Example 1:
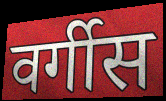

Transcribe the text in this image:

वर्गीस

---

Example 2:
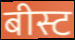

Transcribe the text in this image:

बीस्ट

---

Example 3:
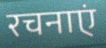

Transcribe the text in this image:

रचनाएं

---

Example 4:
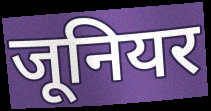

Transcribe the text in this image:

जूनियर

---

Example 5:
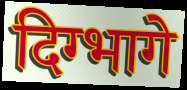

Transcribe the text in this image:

दिग्भागे